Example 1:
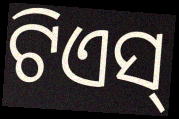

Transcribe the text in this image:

ଟିଏସ୍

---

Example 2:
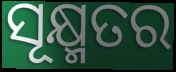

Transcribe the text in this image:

ସୂକ୍ଷ୍ମତର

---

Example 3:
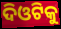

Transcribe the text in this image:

ଦିଓଟିକୁ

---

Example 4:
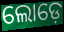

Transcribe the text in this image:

ଲୋଡ଼େ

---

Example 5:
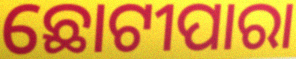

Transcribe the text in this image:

ଛୋଟୀପାରା